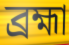
ব্রহ্মা